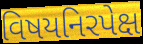
વિષયનિરપેક્ષ